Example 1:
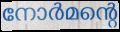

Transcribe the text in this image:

നോർമന്റെ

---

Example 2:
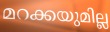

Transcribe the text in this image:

മറക്കയുമില്ല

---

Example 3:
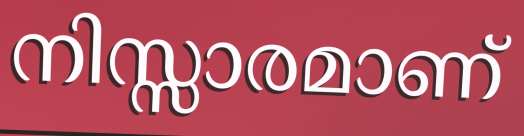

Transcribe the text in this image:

നിസ്സാരമാണ്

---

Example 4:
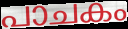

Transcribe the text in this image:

പാചകം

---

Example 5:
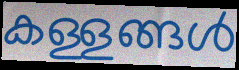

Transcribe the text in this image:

കള്ളങ്ങൾ